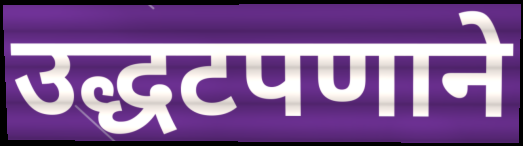
उद्धटपणाने